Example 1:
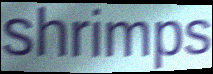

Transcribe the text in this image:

shrimps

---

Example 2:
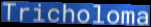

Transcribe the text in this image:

Tricholoma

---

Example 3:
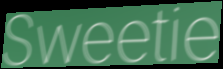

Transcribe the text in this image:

Sweetie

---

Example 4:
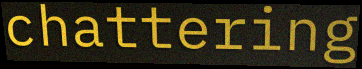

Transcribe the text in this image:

chattering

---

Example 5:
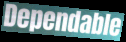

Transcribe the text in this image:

Dependable